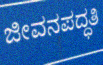
ಜೀವನಪದ್ಧತಿ